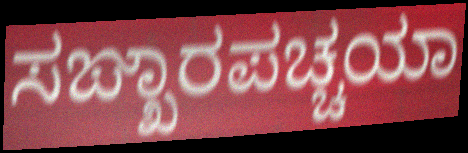
ಸಙ್ಖಾರಪಚ್ಚಯಾ